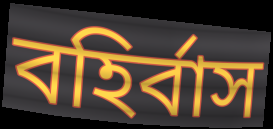
বহির্বাস